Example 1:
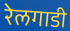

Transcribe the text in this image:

रेलगाडी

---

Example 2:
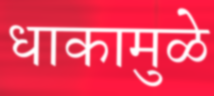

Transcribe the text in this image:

धाकामुळे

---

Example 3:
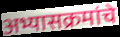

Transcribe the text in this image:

अभ्यासक्रमांचे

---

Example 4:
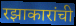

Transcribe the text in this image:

रझाकारांची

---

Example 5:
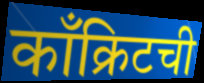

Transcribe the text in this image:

काँक्रिटची